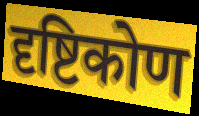
दृष्टिकोण